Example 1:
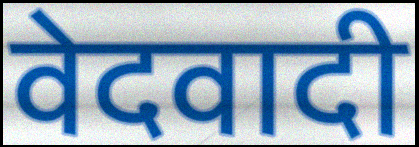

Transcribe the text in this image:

वेदवादी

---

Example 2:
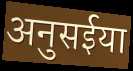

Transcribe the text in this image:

अनुसईया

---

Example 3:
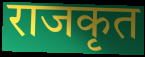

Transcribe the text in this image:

राजकृत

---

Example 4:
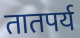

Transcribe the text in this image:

तातपर्य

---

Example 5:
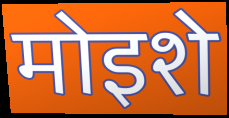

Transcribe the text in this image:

मोइशे